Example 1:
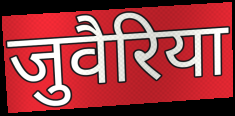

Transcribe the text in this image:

जुवैरिया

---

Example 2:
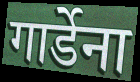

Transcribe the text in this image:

गार्डेना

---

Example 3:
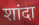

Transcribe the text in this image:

शांदा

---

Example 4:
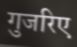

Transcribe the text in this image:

गुजरिए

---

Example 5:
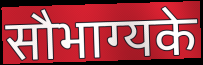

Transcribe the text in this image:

सौभाग्यके